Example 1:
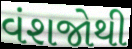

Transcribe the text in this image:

વંશજોથી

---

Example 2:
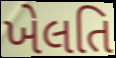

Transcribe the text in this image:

ખેલતિ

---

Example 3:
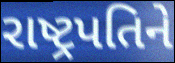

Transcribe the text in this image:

રાષ્ટ્રપતિને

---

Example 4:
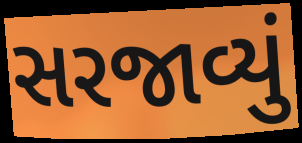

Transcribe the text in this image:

સરજાવ્યું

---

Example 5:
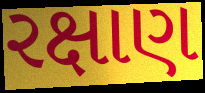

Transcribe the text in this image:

રક્ષાણ